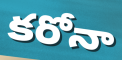
కరోనా